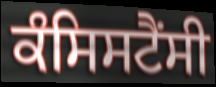
ਕੰਸਿਸਟੈਂਸੀ